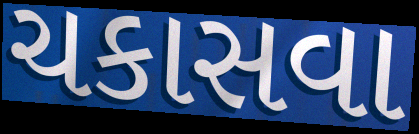
ચકાસવા